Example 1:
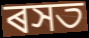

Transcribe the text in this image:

ৰসত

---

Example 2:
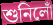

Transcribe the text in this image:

শুনিলোঁ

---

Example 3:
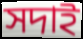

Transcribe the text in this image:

সদাই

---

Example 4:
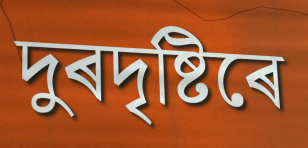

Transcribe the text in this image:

দুৰদৃষ্টিৰে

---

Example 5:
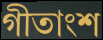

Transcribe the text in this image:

গীতাংশ